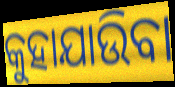
କୁହାଯାଉିବା